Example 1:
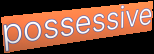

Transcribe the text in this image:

possessive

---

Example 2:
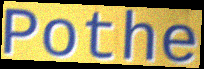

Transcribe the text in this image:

Pothe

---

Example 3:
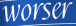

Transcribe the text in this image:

worser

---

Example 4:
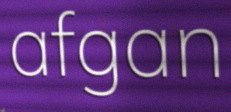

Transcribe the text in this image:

afgan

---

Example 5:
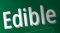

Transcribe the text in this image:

Edible